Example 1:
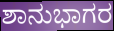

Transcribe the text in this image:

ಶಾನುಭಾಗರ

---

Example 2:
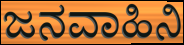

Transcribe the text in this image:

ಜನವಾಹಿನಿ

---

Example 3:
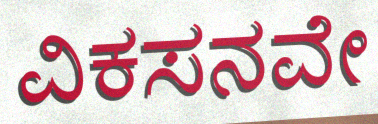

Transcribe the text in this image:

ವಿಕಸನವೇ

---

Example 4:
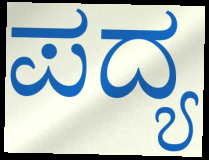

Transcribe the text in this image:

ಪದ್ಯ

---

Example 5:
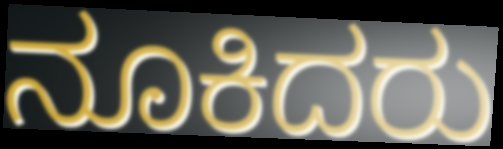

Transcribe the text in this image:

ನೂಕಿದರು